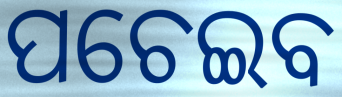
ପଚେଇବ